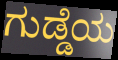
ಗುಡ್ಡೆಯ